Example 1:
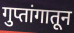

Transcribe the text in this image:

गुप्तांगातून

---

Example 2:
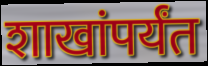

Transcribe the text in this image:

शाखांपर्यंत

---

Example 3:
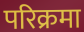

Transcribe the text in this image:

परिक्रमा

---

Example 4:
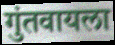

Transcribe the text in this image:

गुंतवायला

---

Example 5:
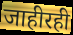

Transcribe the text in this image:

जाहीरही